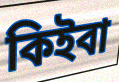
কিইবা